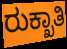
ರುಕ್ಖಾತಿ